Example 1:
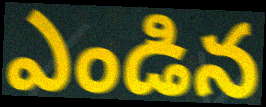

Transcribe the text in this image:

ఎండిన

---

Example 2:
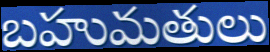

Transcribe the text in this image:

బహుమతులు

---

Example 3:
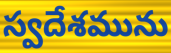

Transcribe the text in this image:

స్వదేశమును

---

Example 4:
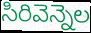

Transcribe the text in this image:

సిరివెన్నెల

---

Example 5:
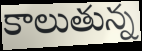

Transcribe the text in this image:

కాలుతున్న